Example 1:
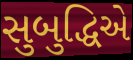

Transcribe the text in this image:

સુબુદ્ધિએ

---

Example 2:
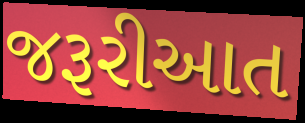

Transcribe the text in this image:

જરૂરીઆત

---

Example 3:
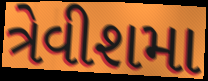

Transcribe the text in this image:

ત્રેવીશમા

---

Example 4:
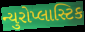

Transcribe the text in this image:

ન્યુરોપ્લાસ્ટિક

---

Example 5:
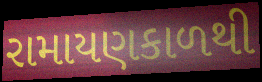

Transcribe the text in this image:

રામાયણકાળથી